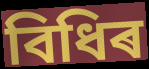
বিধিৰ